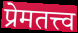
प्रेमतत्त्व